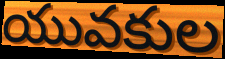
యువకుల